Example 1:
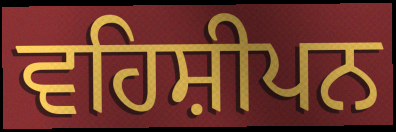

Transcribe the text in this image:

ਵਹਿਸ਼ੀਪਨ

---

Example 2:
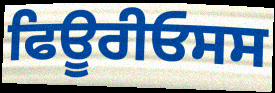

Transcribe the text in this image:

ਫਿਊਰੀਓਸਸ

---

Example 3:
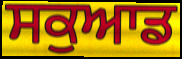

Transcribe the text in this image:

ਸਕੁਆਡ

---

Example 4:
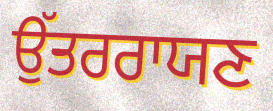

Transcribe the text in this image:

ਉੱਤਰਰਾਯਣ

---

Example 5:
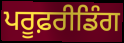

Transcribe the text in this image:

ਪਰੂਫ਼ਰੀਡਿੰਗ